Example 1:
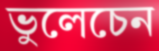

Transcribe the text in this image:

ভুলেচেন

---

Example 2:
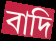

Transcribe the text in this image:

বাদি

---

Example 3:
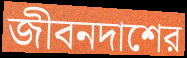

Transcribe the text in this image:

জীবনদাশের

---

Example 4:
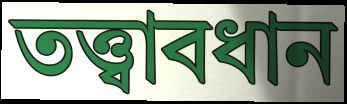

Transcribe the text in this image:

তত্ত্বাবধান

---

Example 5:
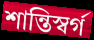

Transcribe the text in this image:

শান্তিস্বর্গ